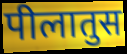
पीलातुस